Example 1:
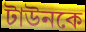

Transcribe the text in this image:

টাউনকে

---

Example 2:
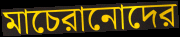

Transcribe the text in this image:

মাচেরানোদের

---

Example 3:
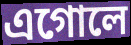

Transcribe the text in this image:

এগোলে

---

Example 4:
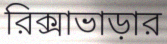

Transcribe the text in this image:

রিক্সাভাড়ার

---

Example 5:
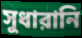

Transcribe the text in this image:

সুধারানি